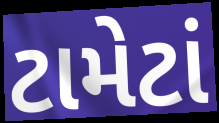
ટામેટાં